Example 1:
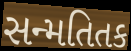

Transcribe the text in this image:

સન્મતિતક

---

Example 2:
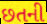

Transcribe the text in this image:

છતની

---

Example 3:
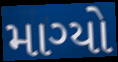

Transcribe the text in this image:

માગ્યો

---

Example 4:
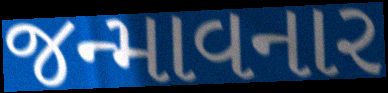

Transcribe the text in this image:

જન્માવનાર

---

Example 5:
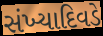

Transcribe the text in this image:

સંખ્યાદિવડે